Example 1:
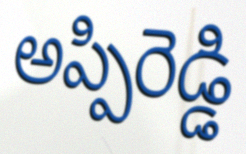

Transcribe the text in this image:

అప్పిరెడ్డి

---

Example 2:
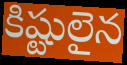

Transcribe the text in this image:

కిష్టులైన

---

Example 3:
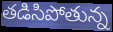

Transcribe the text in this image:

తడిసిపోతున్న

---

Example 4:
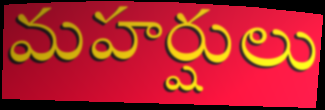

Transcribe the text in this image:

మహర్షులు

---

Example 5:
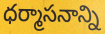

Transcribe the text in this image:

ధర్మాసనాన్ని